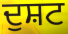
ਦੁਸ਼ਟ